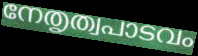
നേതൃത്വപാടവം